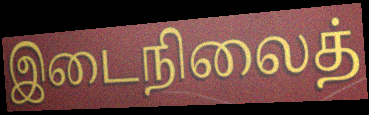
இடைநிலைத்